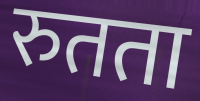
रुतता